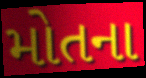
મોતના